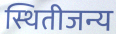
स्थितीजन्य